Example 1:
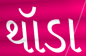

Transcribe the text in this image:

થૉડા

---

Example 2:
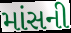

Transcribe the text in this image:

માંસની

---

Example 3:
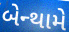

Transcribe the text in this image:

બેન્થામે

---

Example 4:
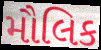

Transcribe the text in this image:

મૌલિક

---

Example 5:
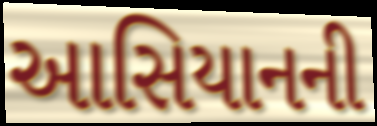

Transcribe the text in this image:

આસિયાનની